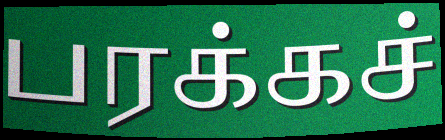
பரக்கச்